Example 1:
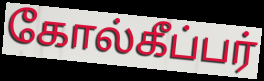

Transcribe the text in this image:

கோல்கீப்பர்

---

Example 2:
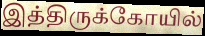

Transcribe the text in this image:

இத்திருக்கோயில்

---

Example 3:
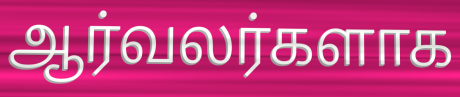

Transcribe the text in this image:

ஆர்வலர்களாக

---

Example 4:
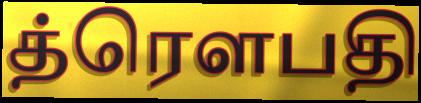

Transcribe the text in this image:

த்ரௌபதி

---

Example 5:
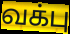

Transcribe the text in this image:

வக்பு